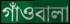
গাঁওবালা